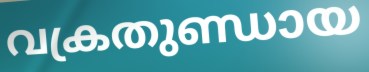
വക്രതുണ്ഡായ